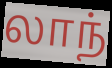
லாந்